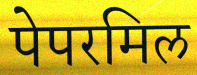
पेपरमिल